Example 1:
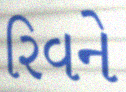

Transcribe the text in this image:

રિવને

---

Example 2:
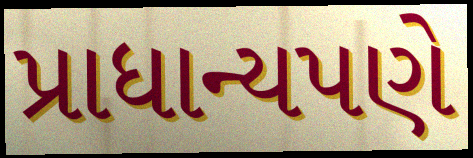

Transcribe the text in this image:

પ્રાધાન્યપણે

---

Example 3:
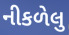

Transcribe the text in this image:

નીકળેલુ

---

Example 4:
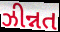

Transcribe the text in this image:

ઝીન્નત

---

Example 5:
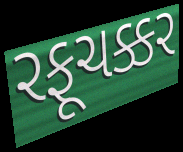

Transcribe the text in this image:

રફૂચક્કર